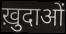
ख़ुदाओं